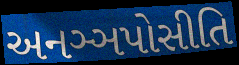
અનઞ્ઞપોસીતિ